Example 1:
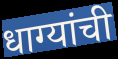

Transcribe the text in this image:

धाग्यांची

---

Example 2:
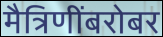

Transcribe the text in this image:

मैत्रिणींबरोबर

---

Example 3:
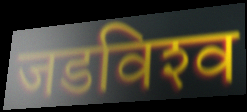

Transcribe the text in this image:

जडविश्व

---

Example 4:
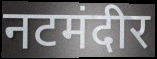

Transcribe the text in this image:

नटमंदीर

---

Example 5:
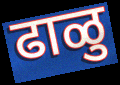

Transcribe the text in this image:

ढाळु